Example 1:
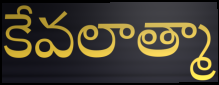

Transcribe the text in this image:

కేవలాత్మా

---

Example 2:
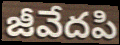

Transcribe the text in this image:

జీవేదపి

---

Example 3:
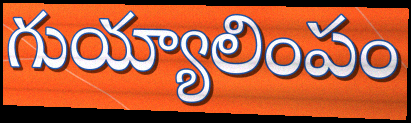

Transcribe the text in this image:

గుయ్యాలింపం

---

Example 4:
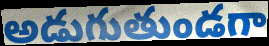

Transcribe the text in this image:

అడుగుతుండగా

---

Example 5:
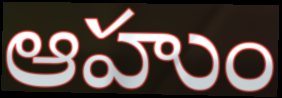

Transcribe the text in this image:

ఆహుం